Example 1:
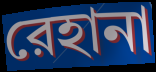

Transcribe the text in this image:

রেহানা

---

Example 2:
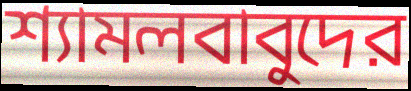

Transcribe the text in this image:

শ্যামলবাবুদের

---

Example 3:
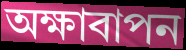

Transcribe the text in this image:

অক্ষাবাপন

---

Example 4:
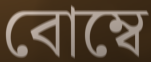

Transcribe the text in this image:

বোম্বে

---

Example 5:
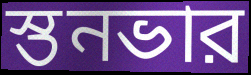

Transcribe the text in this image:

স্তনভার